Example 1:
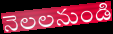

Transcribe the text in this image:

నెలలనుండి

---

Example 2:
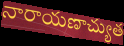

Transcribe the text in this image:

నారాయణాచ్యుత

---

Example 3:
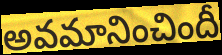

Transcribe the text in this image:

అవమానించిందీ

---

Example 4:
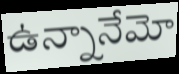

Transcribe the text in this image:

ఉన్నానేమో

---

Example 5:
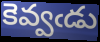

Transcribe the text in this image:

కెవ్వఁడు